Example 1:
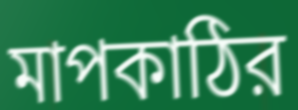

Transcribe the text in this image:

মাপকাঠির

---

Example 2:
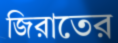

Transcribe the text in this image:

জিরাতের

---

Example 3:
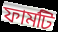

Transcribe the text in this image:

ফার্মটি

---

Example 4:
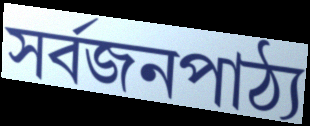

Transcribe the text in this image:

সর্বজনপাঠ্য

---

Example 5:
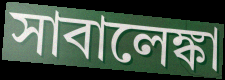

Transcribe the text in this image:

সাবালেঙ্কা